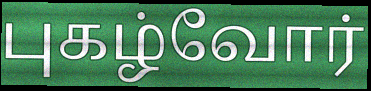
புகழ்வோர்